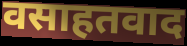
वसाहतवाद